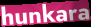
hunkara